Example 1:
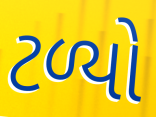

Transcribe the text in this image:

ટળ્યો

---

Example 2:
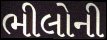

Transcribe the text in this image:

ભીલોની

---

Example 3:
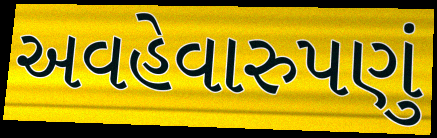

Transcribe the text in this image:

અવહેવારુપણું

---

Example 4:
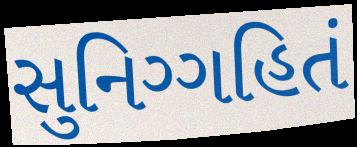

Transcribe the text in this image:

સુનિગ્ગહિતં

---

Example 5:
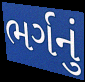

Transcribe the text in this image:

ભર્ગનું